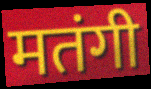
मतंगी